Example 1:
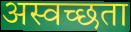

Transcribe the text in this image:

अस्वच्छता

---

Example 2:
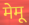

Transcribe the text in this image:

मेमू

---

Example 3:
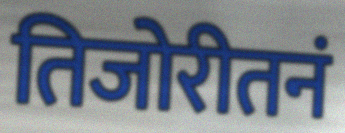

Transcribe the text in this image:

तिजोरीतनं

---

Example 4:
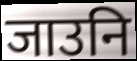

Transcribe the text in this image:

जाउनि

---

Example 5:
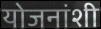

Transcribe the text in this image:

योजनांशी